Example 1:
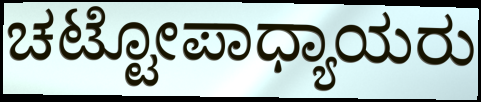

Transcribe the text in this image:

ಚಟ್ಟೋಪಾಧ್ಯಾಯರು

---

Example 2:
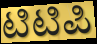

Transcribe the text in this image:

ಟಿಟಿಪಿ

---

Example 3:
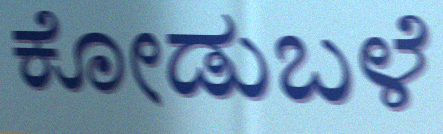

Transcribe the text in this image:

ಕೋಡುಬಳೆ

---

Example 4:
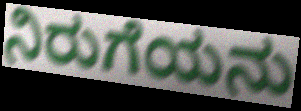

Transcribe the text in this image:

ನಿರುಗೆಯನು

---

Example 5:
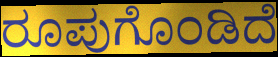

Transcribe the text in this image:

ರೂಪುಗೊಂಡಿದೆ